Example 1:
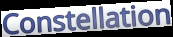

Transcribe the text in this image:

Constellation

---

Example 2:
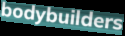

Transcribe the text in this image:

bodybuilders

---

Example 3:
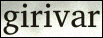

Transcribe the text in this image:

girivar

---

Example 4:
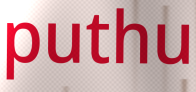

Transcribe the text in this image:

puthu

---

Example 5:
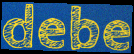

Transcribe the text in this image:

debe